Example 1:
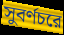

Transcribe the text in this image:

সুবর্ণচরে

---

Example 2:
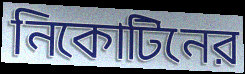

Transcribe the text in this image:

নিকোটিনের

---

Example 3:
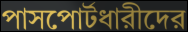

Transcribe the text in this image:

পাসপোর্টধারীদের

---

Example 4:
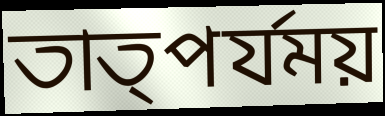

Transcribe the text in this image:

তাত্পর্যময়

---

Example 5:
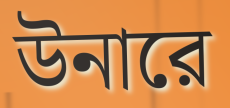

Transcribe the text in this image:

উনারে